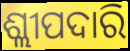
ଶ୍ଲୀପଦାରି